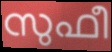
സുഫീ